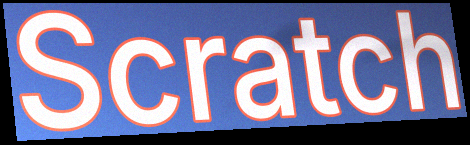
Scratch